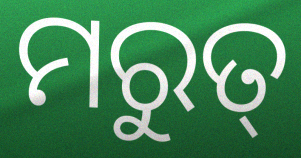
ମରୁତ୍